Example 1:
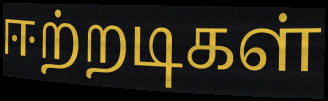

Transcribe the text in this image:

ஈற்றடிகள்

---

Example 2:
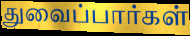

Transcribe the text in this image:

துவைப்பார்கள்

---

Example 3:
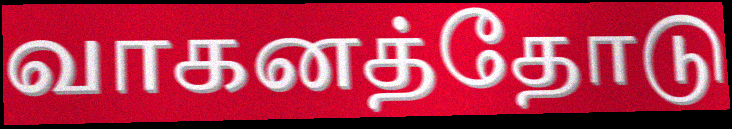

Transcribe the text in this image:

வாகனத்தோடு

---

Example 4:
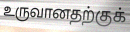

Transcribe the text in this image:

உருவானதற்குக்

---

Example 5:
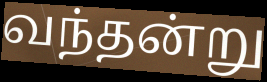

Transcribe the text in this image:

வந்தன்று